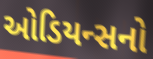
ઓડિયન્સનો